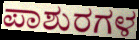
ಪಾಶುರಗಳ